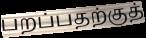
பறப்பதற்குத்